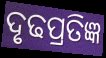
ଦୃଢପ୍ରତିଜ୍ଞ